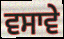
ਵਸਾਵੇ